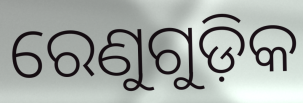
ରେଣୁଗୁଡ଼ିକ